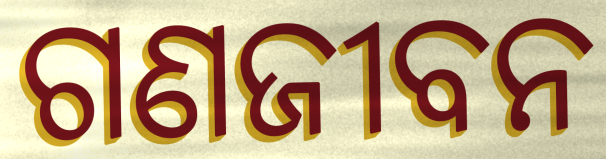
ଗଣଜୀବନ